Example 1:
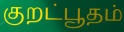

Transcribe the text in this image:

குறட்பூதம்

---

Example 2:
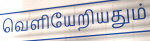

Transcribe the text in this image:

வெளியேறியதும்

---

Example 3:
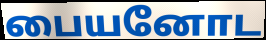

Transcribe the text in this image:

பையனோட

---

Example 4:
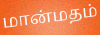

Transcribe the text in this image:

மான்மதம்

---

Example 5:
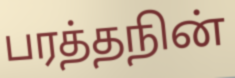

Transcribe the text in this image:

பரத்தநின்